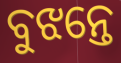
ବୁଝନ୍ତେ